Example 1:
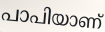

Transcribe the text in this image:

പാപിയാണ്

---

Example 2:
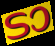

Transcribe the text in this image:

ടാ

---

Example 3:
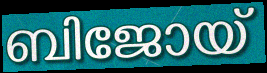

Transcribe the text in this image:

ബിജോയ്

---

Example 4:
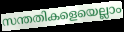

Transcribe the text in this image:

സന്തതികളെയെല്ലാം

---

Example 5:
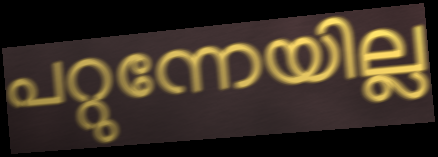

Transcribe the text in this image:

പറ്റുന്നേയില്ല